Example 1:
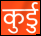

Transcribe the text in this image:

कुर्डु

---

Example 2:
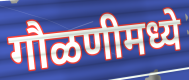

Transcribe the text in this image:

गौळणीमध्ये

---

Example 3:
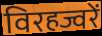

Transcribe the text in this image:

विरहज्वरें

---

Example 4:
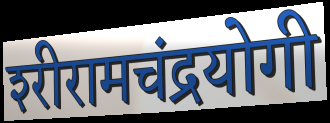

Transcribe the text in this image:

श्रीरामचंद्रयोगी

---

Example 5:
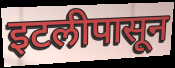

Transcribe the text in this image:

इटलीपासून